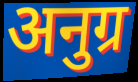
अनुग्र